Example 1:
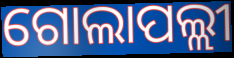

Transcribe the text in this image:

ଗୋଲାପଲ୍ଲୀ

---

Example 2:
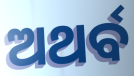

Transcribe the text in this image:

ଅଥର୍ବ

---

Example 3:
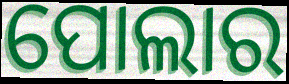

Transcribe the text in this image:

ପୋଲାର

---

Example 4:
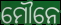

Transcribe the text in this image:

ମୌନେ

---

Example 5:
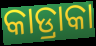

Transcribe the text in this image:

କାଡ୍ରାକା